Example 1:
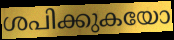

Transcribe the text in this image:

ശപിക്കുകയോ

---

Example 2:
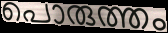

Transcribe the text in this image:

പൊരുത്തം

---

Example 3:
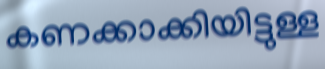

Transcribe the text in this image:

കണക്കാക്കിയിട്ടുള്ള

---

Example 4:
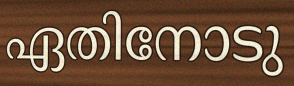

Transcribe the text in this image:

ഏതിനോടു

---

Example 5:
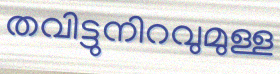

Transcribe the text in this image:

തവിട്ടുനിറവുമുള്ള